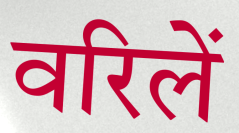
वरिलें